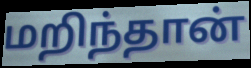
மறிந்தான்